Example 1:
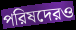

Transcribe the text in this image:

পরিষদেরও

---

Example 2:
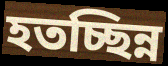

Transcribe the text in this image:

হতচ্ছিন্ন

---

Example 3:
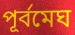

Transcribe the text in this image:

পূর্বমেঘ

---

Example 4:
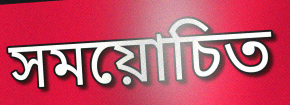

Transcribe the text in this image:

সময়োচিত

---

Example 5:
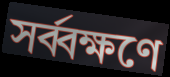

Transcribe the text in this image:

সর্ব্বক্ষণে